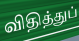
விதித்துப்